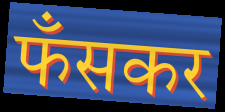
फँसकर